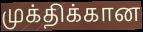
முக்திக்கான